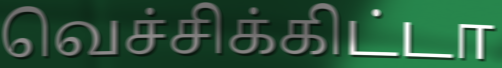
வெச்சிக்கிட்டா